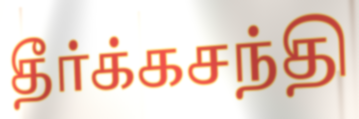
தீர்க்கசந்தி